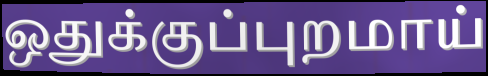
ஒதுக்குப்புறமாய்